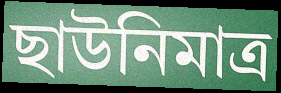
ছাউনিমাত্র